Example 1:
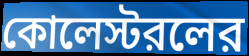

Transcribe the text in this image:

কোলেস্টরলের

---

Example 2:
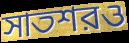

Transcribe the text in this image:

সাতশরও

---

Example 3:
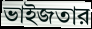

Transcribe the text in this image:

ভাইজতার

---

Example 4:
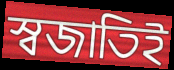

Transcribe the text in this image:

স্বজাতিই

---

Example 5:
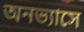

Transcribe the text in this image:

অনভ্যাসে